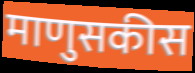
माणुसकीस